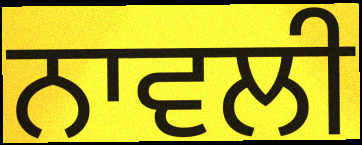
ਨਾਵਲੀ